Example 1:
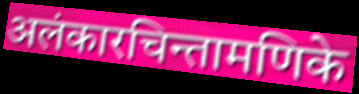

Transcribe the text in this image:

अलंकारचिन्तामणिके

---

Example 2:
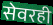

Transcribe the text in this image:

सेवरही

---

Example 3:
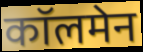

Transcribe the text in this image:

कॉलमेन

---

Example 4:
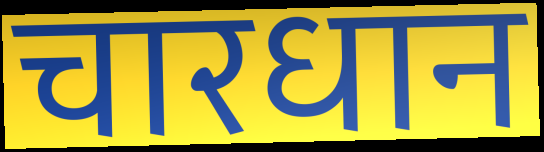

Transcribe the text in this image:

चारधान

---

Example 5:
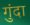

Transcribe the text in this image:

गुंदा